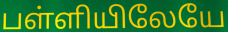
பள்ளியிலேயே